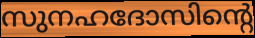
സുനഹദോസിന്റെ